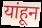
यांहून